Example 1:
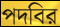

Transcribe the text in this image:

পদবির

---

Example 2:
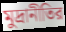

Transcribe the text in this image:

মুদ্রানীতির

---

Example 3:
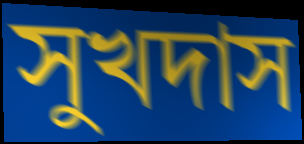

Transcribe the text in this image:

সুখদাস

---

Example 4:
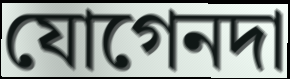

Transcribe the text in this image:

যোগেনদা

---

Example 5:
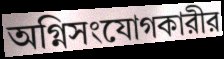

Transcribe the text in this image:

অগ্নিসংযোগকারীর